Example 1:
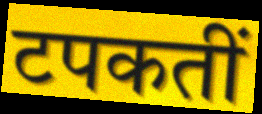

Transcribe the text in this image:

टपकतीं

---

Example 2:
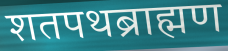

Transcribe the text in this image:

शतपथब्राह्मण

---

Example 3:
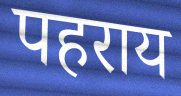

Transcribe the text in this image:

पहराय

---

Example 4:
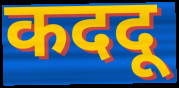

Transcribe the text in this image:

कददू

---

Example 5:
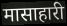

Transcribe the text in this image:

मासाहारी